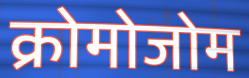
क्रोमोजोम